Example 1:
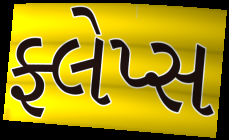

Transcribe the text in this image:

ફ્લેપ્સ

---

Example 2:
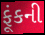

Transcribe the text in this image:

ફૂંકની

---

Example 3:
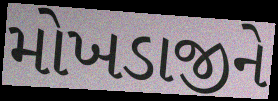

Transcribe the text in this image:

મોખડાજીને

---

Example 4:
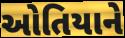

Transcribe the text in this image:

ઓતિયાને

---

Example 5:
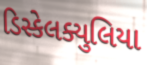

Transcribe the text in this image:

ડિસ્કેલક્યુલિયા